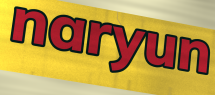
naryun